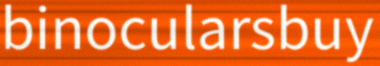
binocularsbuy